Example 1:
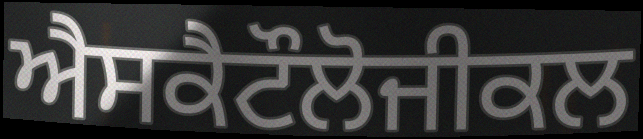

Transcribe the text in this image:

ਐਸਕੈਟੌਲੋਜੀਕਲ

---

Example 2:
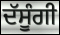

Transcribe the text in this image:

ਦੱਸੂੰਗੀ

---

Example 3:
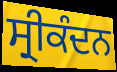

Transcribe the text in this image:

ਸ੍ਰੀਕੰਦਨ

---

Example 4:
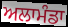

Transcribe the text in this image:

ਅਲਾਮੰਡਾ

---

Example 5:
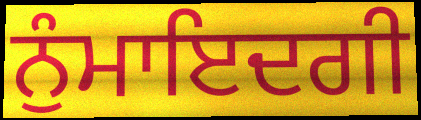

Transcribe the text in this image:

ਨੁੰਮਾਇਦਗੀ